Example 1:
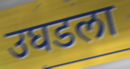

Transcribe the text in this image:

उघडला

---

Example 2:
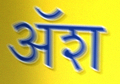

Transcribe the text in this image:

ॲश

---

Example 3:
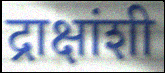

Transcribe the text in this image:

द्राक्षांशी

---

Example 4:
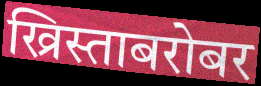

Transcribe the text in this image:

ख्रिस्ताबरोबर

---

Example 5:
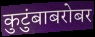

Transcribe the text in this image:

कुटुंबाबरोबर